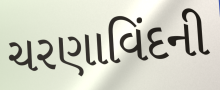
ચરણાવિંદની